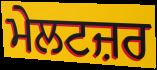
ਮੇਲਟਜ਼ਰ